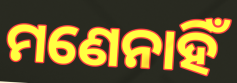
ମଣେନାହିଁ